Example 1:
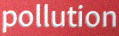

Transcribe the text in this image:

pollution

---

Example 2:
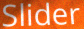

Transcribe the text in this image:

Slider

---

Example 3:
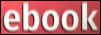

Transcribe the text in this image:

ebook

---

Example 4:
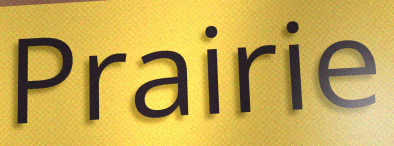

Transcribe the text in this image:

Prairie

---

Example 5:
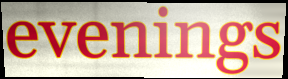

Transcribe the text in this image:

evenings